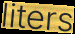
liters